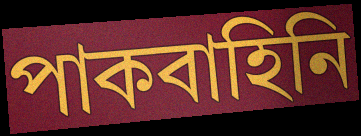
পাকবাহিনি